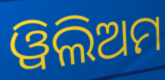
ୱିଲିଅମ